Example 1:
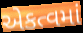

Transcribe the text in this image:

એકત્વમાં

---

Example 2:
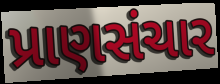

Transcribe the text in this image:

પ્રાણસંચાર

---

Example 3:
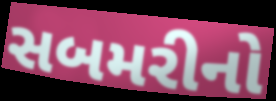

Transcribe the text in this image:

સબમરીનો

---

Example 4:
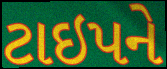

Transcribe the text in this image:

ટાઇપને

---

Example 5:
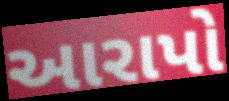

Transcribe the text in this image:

આરાપો